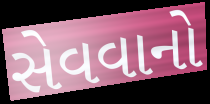
સેવવાનો